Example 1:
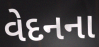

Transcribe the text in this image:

વેદનના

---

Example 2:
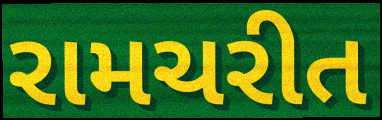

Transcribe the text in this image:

રામચરીત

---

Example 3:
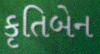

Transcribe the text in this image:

કૃતિબેન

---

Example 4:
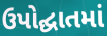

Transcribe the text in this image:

ઉપોદ્ઘાતમાં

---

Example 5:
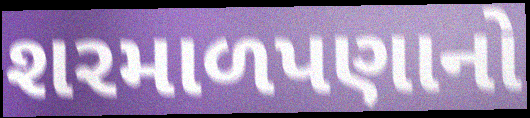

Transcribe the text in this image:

શરમાળપણાનો